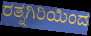
ರತ್ನಗಿರಿಯಿಂದ